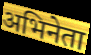
अभिनेता